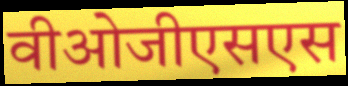
वीओजीएसएस